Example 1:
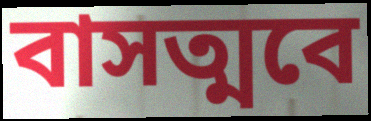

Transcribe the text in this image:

বাসত্মবে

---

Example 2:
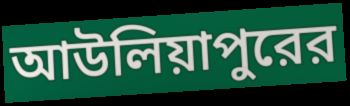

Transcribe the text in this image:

আউলিয়াপুরের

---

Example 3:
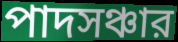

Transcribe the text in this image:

পাদসঞ্চার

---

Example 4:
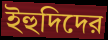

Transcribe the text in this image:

ইহুদিদের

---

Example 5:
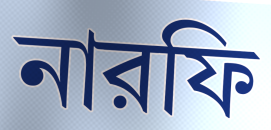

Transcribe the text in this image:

নারফি